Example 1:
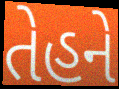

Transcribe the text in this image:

તેહને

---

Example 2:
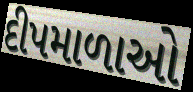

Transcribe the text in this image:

દીપમાળાઓ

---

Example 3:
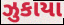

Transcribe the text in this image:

ઝુકાયા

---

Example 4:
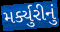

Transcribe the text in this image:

મર્ક્યુરીનું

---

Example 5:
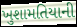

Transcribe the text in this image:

ખુશામતિયાની